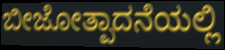
ಬೀಜೋತ್ಪಾದನೆಯಲ್ಲಿ